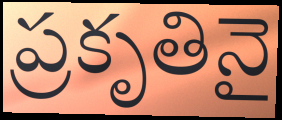
ప్రకృతినై